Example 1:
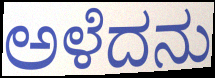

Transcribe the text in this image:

ಅಳೆದನು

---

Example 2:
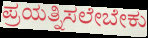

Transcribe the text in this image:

ಪ್ರಯತ್ನಿಸಲೇಬೇಕು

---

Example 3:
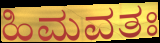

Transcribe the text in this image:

ಹಿಮವತಃ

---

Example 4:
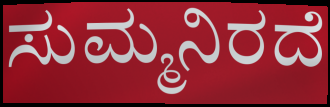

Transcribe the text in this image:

ಸುಮ್ಮನಿರದೆ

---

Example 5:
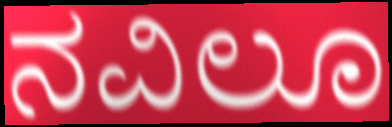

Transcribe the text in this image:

ನವಿಲೂ